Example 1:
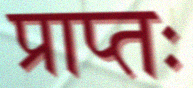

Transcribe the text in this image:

प्राप्तः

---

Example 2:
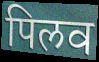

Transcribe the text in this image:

पिलव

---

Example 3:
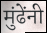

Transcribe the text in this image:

मुंढेंनी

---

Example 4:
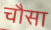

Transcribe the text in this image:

चौसा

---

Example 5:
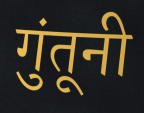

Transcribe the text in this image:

गुंतूनी